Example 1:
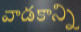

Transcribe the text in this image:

వాడకాన్ని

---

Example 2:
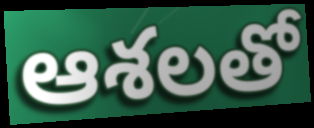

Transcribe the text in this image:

ఆశలతో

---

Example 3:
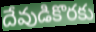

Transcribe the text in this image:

దేవుడికొరకు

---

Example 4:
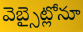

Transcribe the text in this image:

వెబ్సైట్లోనూ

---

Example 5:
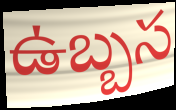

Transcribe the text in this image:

ఉబ్బస